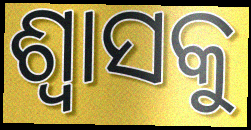
ଶ୍ଵାସକୁ